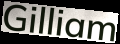
Gilliam